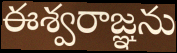
ఈశ్వరాజ్ఞను